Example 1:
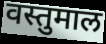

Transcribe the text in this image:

वस्तुमाल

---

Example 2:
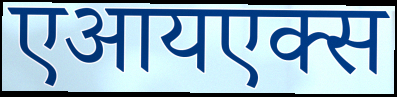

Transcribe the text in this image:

एआयएक्स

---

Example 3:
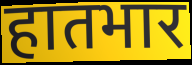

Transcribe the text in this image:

हातभार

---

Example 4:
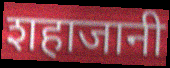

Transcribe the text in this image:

शहाजानी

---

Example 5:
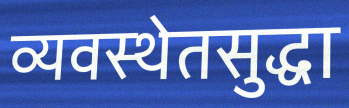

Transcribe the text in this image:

व्यवस्थेतसुद्धा